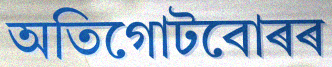
অতিগোটবোৰৰ